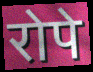
रोपे